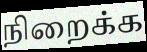
நிறைக்க